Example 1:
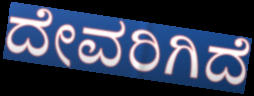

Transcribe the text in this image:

ದೇವರಿಗಿದೆ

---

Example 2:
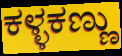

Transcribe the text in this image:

ಕಳ್ಳಕಣ್ಣು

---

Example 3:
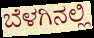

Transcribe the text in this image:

ಬೆಳಗಿನಲ್ಲಿ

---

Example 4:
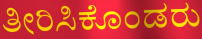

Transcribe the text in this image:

ತೀರಿಸಿಕೊಂಡರು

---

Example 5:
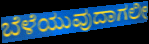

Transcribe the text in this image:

ಬೆಳೆಯುವುದಾಗಲೀ